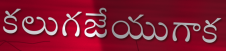
కలుగజేయుగాక